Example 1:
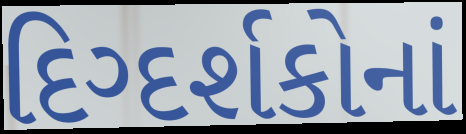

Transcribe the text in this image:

દિગ્દર્શકોનાં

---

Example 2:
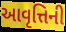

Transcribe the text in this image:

આવૃત્તિની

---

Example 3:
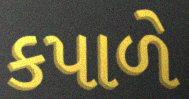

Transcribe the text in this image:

કપાળે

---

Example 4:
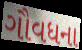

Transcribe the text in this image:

ગૌવધના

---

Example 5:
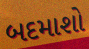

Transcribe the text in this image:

બદમાશો